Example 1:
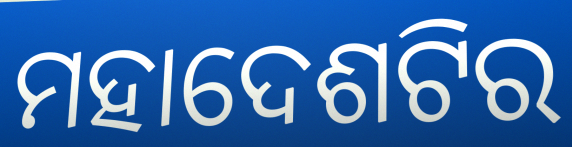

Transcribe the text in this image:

ମହାଦେଶଟିର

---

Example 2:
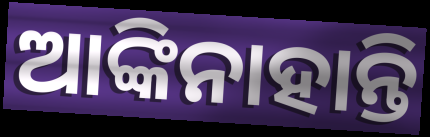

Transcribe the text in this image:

ଆଙ୍କିନାହାନ୍ତି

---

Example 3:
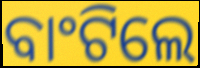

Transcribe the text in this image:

ବାଂଟିଲେ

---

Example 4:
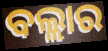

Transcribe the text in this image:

ବଲ୍ଲାର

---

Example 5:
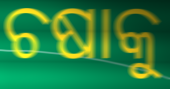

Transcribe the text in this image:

ଚଷାକୁ